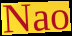
Nao